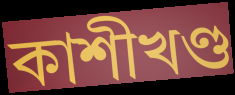
কাশীখণ্ড